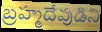
బ్రహ్మదేవుడిని